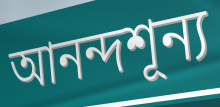
আনন্দশূন্য